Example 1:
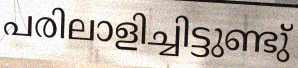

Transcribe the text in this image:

പരിലാളിച്ചിട്ടുണ്ടു്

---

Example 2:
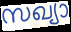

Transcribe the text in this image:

സഖ്യാ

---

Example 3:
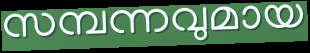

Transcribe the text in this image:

സമ്പന്നവുമായ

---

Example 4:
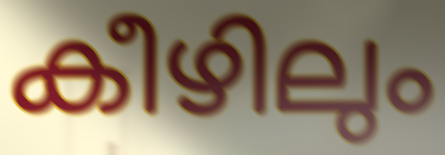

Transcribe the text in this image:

കീഴിലും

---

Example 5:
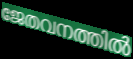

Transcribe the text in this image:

ജേതവനത്തിൽ